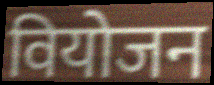
वियोजन